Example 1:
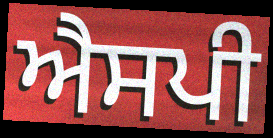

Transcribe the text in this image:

ਐਸਪੀ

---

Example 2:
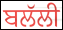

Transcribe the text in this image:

ਬਲੱਲੀ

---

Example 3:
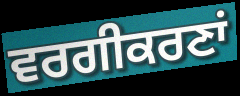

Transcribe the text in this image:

ਵਰਗੀਕਰਣਾਂ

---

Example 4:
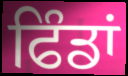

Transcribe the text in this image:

ਫਿੰਡਾਂ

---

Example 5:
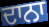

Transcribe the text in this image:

ਦਾਨਾ